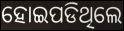
ହୋଇପଡିଥିଲେ